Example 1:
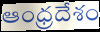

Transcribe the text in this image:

ఆంధ్రదేశం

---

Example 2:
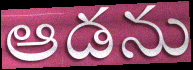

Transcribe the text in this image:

ఆడను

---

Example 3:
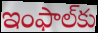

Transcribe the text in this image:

ఇంఫాల్‌కు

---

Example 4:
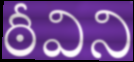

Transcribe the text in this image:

ఠీవిని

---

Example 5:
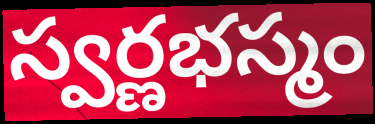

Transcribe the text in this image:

స్వర్ణభస్మం